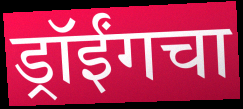
ड्रॉईंगचा